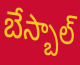
బేస్బాల్